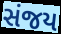
સંજય